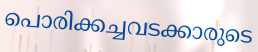
പൊരിക്കച്ചവടക്കാരുടെ